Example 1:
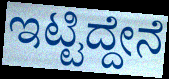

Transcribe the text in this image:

ಇಟ್ಟಿದ್ದೇನೆ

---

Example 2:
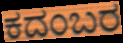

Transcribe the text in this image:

ಕದಂಬರ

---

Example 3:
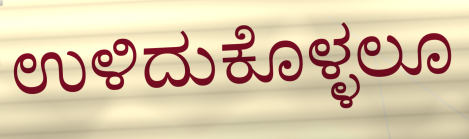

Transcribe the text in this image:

ಉಳಿದುಕೊಳ್ಳಲೂ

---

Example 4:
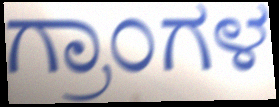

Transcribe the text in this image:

ಗ್ರಾಂಗಳ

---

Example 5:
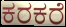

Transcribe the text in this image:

ಕರಕರೆ